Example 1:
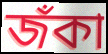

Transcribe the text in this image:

জঁকা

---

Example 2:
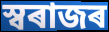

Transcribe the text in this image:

স্বৰাজৰ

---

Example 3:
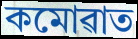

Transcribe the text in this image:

কমোৱাত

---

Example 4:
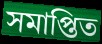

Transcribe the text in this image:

সমাপ্তিত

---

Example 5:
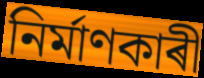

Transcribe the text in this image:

নিৰ্মাণকাৰী